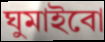
ঘুমাইবো